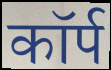
कॉर्प